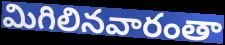
మిగిలినవారంతా